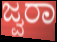
ಜ್ವರಾ